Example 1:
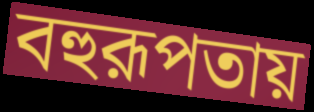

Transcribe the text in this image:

বহুরূপতায়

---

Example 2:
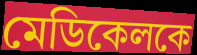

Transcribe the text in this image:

মেডিকেলকে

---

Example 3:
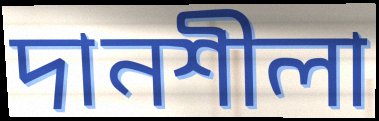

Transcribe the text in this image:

দানশীলা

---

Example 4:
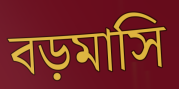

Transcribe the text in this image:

বড়মাসি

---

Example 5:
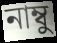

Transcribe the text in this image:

নাম্বু